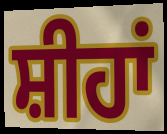
ਸ਼ੀਹਾਂ